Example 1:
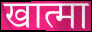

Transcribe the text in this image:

खात्मा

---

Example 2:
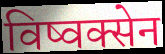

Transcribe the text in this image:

विष्वक्सेन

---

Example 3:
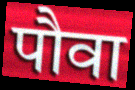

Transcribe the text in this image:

पौवा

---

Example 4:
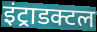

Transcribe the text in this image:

इंट्राडक्टल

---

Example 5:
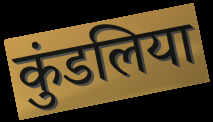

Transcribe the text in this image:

कुंडलिया